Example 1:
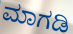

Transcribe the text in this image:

ಮಾಗಡಿ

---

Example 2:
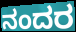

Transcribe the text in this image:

ನಂದರ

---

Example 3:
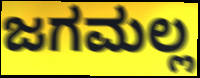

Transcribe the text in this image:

ಜಗಮಲ್ಲ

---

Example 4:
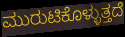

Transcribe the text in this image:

ಮುರುಟಿಕೊಳ್ಳುತ್ತದೆ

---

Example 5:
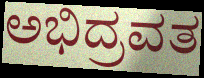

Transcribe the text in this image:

ಅಭಿದ್ರವತ